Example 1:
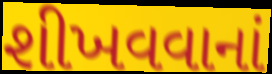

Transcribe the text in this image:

શીખવવાનાં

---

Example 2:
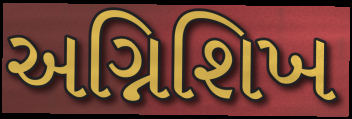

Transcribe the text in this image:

અગ્નિશિખ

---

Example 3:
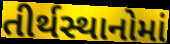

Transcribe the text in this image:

તીર્થસ્થાનોમાં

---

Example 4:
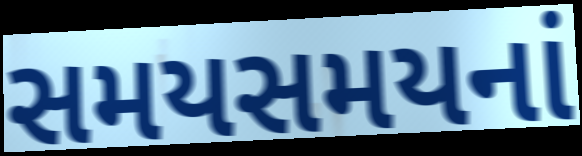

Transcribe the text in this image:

સમયસમયનાં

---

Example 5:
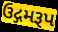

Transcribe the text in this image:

ઉદ્ગમરૂપ